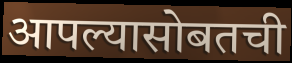
आपल्यासोबतची